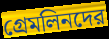
গ্রেমলিনদের